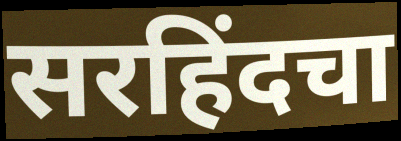
सरहिंदचा